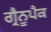
ਗ੍ਰੈਨੂਪੈਕ